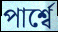
পার্শ্বে